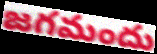
జగమందు